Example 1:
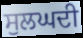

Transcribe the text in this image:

ਸੁਲਘਦੀ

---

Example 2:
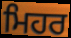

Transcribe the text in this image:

ਮਿਹਰ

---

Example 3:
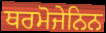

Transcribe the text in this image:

ਥਰਮੋਜੇਨਿਨ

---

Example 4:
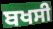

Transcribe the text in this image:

ਬਖਸੀ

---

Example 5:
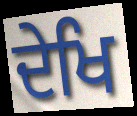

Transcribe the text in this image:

ਦੇਖਿ